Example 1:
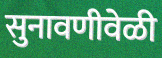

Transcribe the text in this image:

सुनावणीवेळी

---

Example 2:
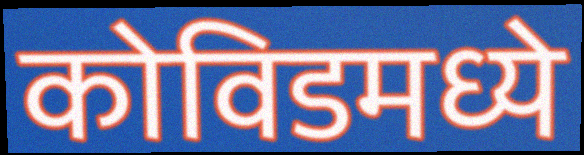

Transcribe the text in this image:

कोविडमध्ये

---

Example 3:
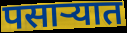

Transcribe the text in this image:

पसार्‍यात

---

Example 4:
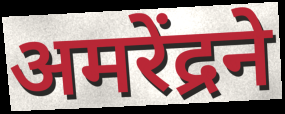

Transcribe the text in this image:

अमरेंद्रने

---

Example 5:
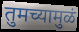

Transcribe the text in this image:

तुमच्यामुळं